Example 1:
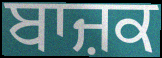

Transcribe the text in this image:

ਬਾਜ਼ਕ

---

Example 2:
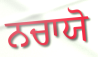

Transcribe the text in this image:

ਨਚਾਯੋ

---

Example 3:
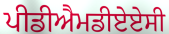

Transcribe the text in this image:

ਪੀਡੀਐਮਡੀਏਏਸੀ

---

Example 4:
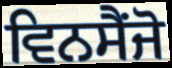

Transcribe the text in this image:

ਵਿਨਸੈਂਜੋ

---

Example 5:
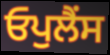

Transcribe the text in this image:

ਓਪੁਲੈਂਸ